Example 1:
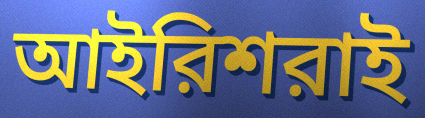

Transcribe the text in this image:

আইরিশরাই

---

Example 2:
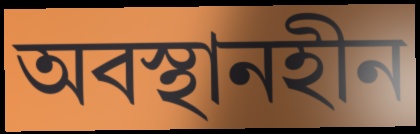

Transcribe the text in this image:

অবস্থানহীন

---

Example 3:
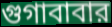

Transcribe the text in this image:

গুগাবাবার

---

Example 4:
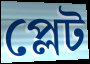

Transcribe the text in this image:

প্লেট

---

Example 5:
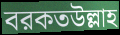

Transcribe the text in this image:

বরকতউল্লাহ